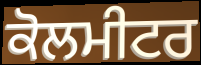
ਕੋਲਮੀਟਰ